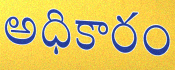
అధికారం